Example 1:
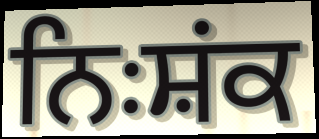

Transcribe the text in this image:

ਨਿਃਸ਼ਂਕ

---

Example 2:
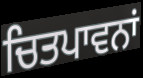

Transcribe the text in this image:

ਚਿਤਪਾਵਨਾਂ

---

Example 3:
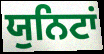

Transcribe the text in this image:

ਯੁਨਿਟਾਂ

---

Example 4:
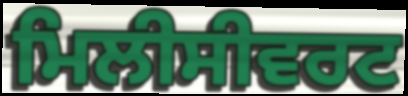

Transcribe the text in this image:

ਮਿਲੀਸੀਵਰਟ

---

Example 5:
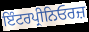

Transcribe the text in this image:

ਇੰਟਰਪ੍ਰੀਨਿਓਰਜ਼